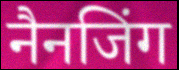
नैनजिंग